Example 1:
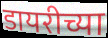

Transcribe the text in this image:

डायरीच्या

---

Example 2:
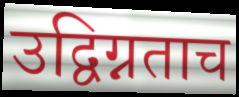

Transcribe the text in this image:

उद्विग्नताच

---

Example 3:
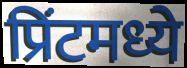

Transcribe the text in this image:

प्रिंटमध्ये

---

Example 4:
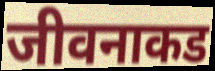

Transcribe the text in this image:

जीवनाकड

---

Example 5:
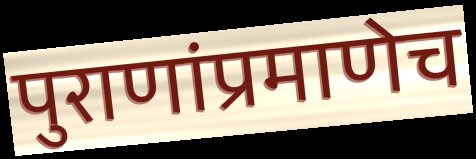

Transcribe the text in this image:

पुराणांप्रमाणेच